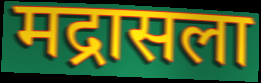
मद्रासला